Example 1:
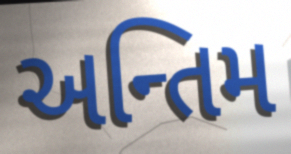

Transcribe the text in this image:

અન્તિમ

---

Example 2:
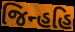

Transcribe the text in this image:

જિન્હહિ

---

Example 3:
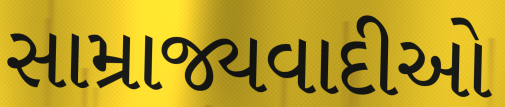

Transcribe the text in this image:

સામ્રાજ્યવાદીઓ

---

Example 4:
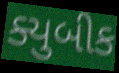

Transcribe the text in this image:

ક્યુબીક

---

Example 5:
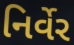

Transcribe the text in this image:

નિર્વેર